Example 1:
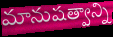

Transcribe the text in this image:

మానుషత్వాన్ని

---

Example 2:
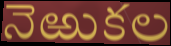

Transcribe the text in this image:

నెఱుకల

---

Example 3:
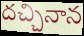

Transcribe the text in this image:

దచ్చినాన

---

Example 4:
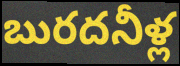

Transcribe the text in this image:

బురదనీళ్ల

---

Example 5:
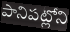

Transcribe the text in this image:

పానిపట్లోని